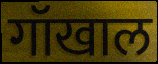
गॉखाल